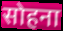
सोहना